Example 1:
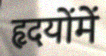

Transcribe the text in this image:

हृदयोंमें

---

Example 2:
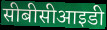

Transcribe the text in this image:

सीबीसीआइडी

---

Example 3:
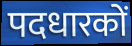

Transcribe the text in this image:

पदधारकों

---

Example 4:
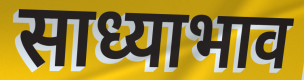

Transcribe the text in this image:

साध्याभाव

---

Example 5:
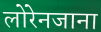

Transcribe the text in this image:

लोरेनजाना